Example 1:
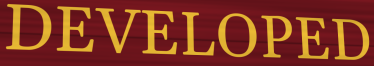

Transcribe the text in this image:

DEVELOPED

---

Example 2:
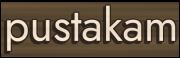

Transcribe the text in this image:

pustakam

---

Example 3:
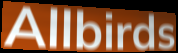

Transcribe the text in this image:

Allbirds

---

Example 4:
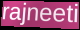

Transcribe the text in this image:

rajneeti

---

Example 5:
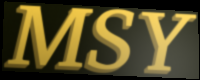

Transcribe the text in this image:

MSY